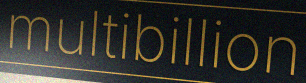
multibillion